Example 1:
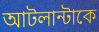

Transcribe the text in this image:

আটলান্টাকে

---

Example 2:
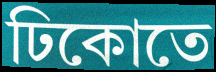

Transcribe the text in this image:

ঢিকোতে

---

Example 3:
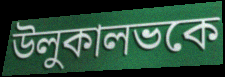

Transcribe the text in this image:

উলুকালভকে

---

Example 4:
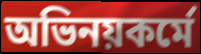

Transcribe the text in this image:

অভিনয়কর্মে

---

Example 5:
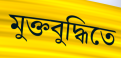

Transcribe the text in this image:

মুক্তবুদ্ধিতে